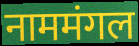
नाममंगल